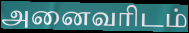
அனைவரிடம்